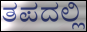
ತಪದಲ್ಲಿ